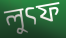
লুৎফ